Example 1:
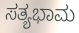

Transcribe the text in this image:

ಸತ್ಯಭಾಮ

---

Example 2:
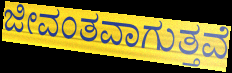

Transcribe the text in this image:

ಜೀವಂತವಾಗುತ್ತವೆ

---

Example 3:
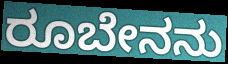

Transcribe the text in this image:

ರೂಬೇನನು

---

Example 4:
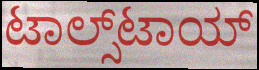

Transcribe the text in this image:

ಟಾಲ್ಸ್‌ಟಾಯ್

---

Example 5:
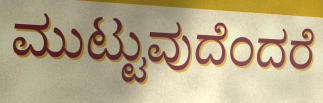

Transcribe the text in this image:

ಮುಟ್ಟುವುದೆಂದರೆ